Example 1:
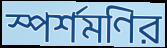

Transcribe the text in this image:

স্পর্শমণির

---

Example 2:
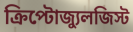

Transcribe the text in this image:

ক্রিপ্টোজ্যুলজিস্ট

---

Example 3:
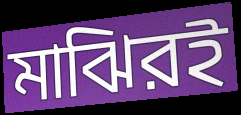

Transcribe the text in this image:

মাঝিরই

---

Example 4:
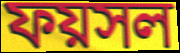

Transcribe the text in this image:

ফয়সল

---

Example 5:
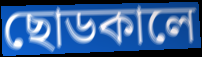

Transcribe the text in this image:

ছোডকালে